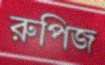
রুপিজ